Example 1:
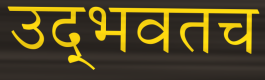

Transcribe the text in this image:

उद्‌भवतच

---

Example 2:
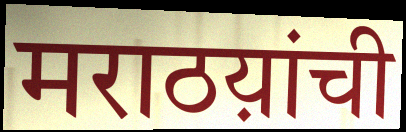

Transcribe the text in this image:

मराठय़ांची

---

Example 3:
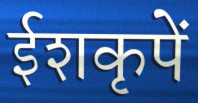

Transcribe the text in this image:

ईशकृपें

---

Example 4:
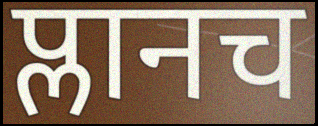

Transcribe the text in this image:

प्लानच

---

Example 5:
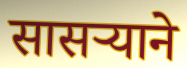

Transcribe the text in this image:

सासऱ्याने